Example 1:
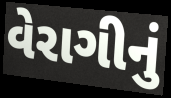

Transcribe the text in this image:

વેરાગીનું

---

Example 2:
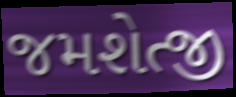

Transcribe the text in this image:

જમશેત્જી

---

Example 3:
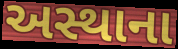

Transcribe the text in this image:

અસ્થાના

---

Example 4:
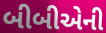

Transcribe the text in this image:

બીબીએની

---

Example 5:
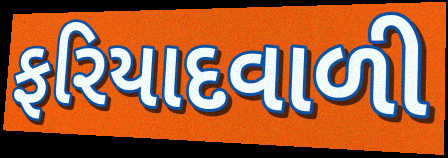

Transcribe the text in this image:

ફરિયાદવાળી